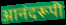
आनंदरूपी